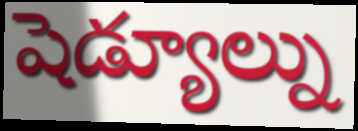
షెడ్యూల్ను